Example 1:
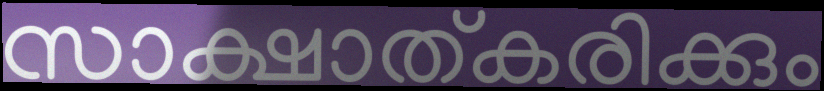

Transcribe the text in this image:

സാക്ഷാത്കരിക്കും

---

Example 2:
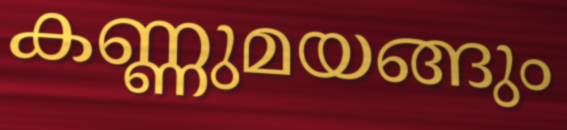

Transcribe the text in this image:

കണ്ണുമയങ്ങും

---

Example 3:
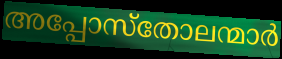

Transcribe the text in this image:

അപ്പോസ്തോലന്മാർ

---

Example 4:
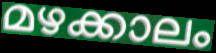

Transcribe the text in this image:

മഴക്കാലം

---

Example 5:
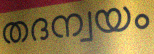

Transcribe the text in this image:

തദന്വയം